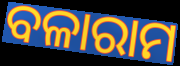
ବଳାରାମ